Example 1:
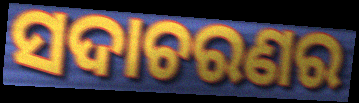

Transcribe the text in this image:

ସଦାଚରଣର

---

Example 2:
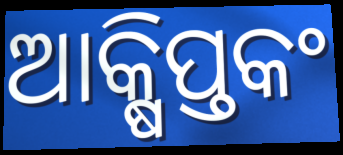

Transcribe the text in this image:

ଆକ୍ଷିପ୍ତକଂ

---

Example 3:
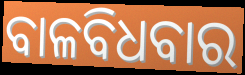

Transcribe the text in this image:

ବାଳବିଧବାର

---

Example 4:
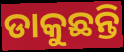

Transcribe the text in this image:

ଡାକୁଛନ୍ତି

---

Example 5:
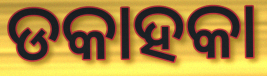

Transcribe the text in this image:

ଡକାହକା